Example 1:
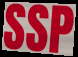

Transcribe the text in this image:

SSP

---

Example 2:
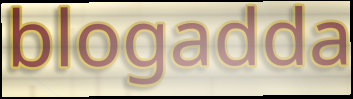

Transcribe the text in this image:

blogadda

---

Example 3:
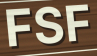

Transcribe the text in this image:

FSF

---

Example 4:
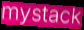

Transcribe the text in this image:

mystack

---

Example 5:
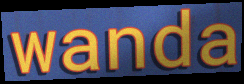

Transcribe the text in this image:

wanda